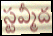
స్టవ్మీద